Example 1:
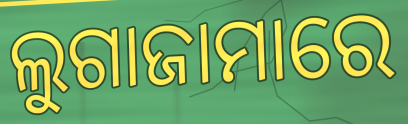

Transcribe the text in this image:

ଲୁଗାଜାମାରେ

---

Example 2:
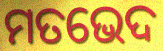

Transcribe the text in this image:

ମତଭେଦ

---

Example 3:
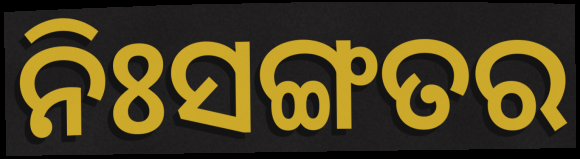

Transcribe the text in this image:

ନିଃସଙ୍ଗତର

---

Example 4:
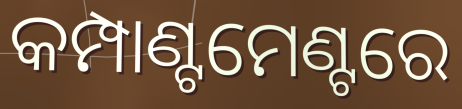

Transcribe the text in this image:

କମ୍ପାଣ୍ଟମେଣ୍ଟରେ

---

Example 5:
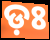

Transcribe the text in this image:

ଡ଼ଃ